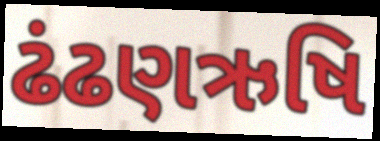
ઢંઢણઋષિ